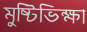
মুষ্টিভিক্ষা